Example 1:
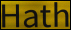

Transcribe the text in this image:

Hath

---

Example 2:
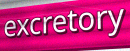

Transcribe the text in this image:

excretory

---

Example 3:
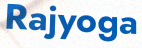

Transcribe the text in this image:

Rajyoga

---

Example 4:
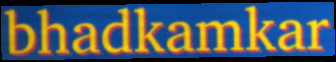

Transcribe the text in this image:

bhadkamkar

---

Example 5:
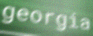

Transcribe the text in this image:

georgia